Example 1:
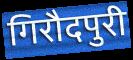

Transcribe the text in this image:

गिरौदपुरी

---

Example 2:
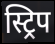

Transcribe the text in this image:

स्ट्रिप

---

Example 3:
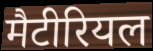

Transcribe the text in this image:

मैटीरियल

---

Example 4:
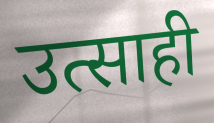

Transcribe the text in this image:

उत्साही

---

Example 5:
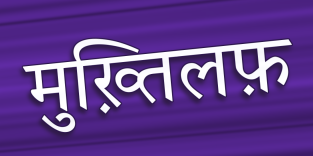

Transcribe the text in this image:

मुख़्तिलफ़